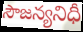
సౌజన్యనిధీ